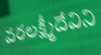
వరలక్ష్మీదేవిని